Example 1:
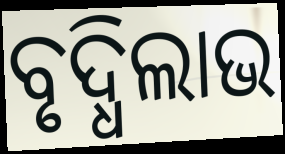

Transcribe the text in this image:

ବୃଦ୍ଧିଲାଭ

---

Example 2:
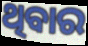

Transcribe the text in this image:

ଥିବାର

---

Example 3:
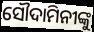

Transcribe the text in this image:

ସୌଦାମିନୀଙ୍କୁ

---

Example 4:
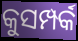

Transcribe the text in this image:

କୁସମ୍ପର୍କ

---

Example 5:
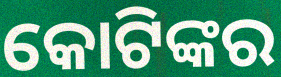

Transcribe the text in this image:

କୋଟିଙ୍କର